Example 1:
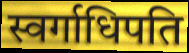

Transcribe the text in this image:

स्वर्गाधिपति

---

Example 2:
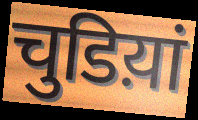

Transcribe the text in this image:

चुडिय़ां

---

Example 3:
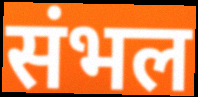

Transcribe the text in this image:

संभल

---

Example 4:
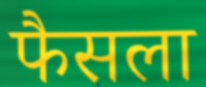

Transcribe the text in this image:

फैसला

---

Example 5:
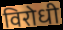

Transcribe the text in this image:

विरोधी